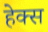
हेक्स